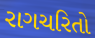
રાગચરિતો